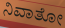
ನಿವಾತೋ